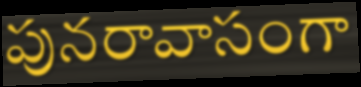
పునరావాసంగా